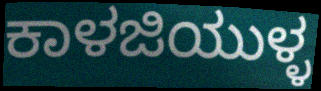
ಕಾಳಜಿಯುಳ್ಳ